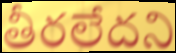
తీరలేదని